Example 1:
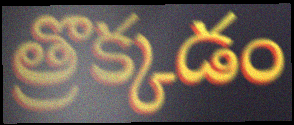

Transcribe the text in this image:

త్రొక్కడం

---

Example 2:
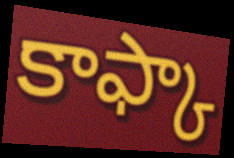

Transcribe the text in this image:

కాఫ్కా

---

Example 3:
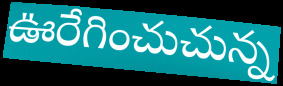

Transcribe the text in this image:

ఊరేగించుచున్న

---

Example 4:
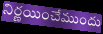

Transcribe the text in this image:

నిర్ణయించేముందు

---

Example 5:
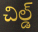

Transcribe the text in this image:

చిల్డ్